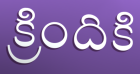
క్రిందికి